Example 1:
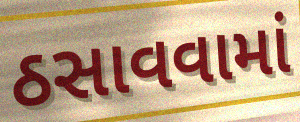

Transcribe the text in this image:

ઠસાવવામાં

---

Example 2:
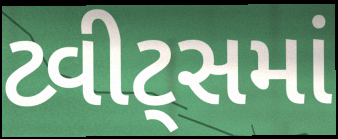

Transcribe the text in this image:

ટ્વીટ્સમાં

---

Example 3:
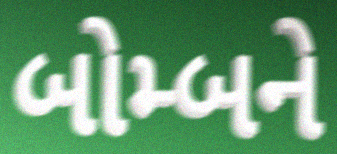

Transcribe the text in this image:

બોમ્બને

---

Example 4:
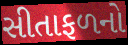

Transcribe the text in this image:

સીતાફળનો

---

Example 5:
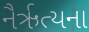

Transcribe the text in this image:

નૈર્ઋત્યના